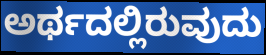
ಅರ್ಥದಲ್ಲಿರುವುದು